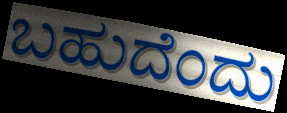
ಬಹುದೆಂದು